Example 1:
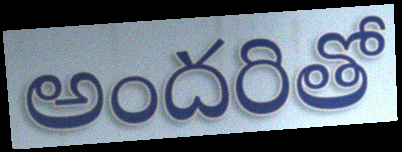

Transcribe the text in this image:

అందరితో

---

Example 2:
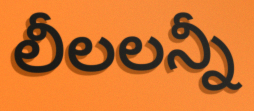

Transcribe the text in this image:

లీలలన్నీ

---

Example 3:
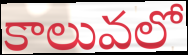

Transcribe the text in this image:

కాలువలో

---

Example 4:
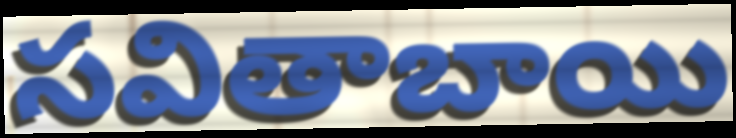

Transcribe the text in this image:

సవితాబాయి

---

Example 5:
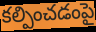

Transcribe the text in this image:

కల్పించడంపై